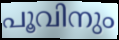
പൂവിനും